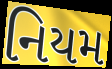
નિયમ